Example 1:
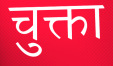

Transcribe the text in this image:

चुक्ता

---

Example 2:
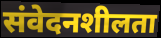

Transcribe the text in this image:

संवेदनशीलता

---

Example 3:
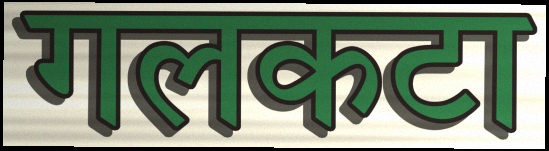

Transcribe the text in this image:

गलकटा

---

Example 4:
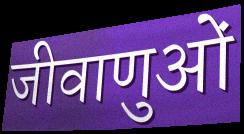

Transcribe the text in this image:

जीवाणुओं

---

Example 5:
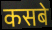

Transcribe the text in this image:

कसबे